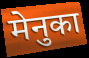
मेनुका